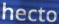
hecto